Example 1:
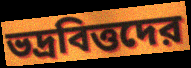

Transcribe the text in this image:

ভদ্রবিত্তদের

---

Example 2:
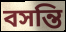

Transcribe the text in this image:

বসন্তি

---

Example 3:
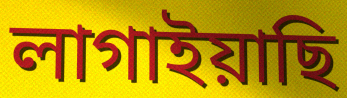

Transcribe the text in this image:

লাগাইয়াছি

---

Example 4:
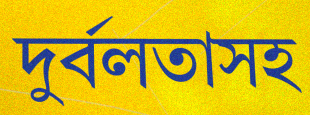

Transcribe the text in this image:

দুর্বলতাসহ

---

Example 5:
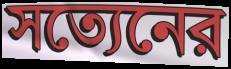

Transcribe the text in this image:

সত্যেনের